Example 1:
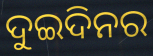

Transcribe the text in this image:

ଦୁଇଦିନର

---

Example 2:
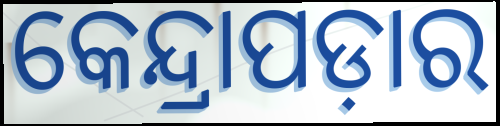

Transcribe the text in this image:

କେନ୍ଦ୍ରାପଡ଼ାର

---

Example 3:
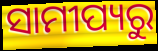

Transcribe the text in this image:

ସାମୀପ୍ୟରୁ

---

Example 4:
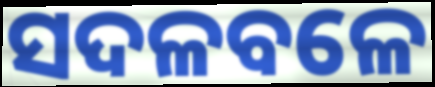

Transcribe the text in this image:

ସଦଳବଳେ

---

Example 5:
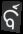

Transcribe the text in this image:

ର୍ବ